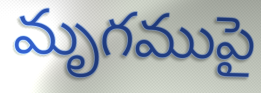
మృగముపై